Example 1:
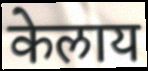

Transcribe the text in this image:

केलाय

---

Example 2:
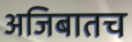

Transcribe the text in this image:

अजिबातच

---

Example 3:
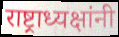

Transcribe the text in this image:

राष्ट्राध्यक्षांनी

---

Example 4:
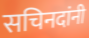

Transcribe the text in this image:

सचिनदांनी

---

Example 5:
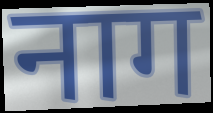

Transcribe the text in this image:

नाग